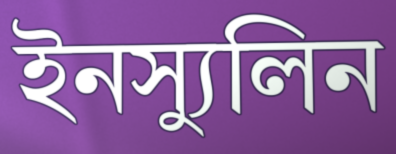
ইনস্যুলিন